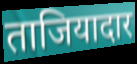
ताजियादार